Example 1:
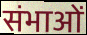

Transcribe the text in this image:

संभाओं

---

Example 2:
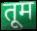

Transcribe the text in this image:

तूम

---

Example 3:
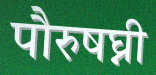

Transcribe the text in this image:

पौरुषघ्नी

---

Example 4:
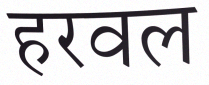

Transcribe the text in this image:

हरवल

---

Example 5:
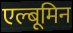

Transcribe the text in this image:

एल्बूमिन